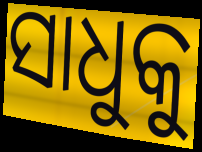
ସାଧୁକୁ